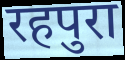
रहपुरा